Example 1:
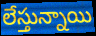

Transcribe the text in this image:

లేస్తున్నాయి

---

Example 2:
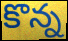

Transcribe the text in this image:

కొన్న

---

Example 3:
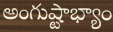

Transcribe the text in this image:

అంగుష్టాభ్యాం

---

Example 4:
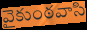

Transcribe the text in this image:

వైకుంఠవాసి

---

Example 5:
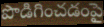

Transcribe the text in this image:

పొడిగించడంపై